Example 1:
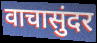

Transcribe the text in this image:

वाचासुंदर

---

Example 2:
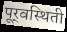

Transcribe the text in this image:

पूर्वस्थिती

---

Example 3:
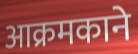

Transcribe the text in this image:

आक्रमकाने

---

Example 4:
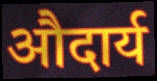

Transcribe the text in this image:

औदार्य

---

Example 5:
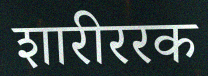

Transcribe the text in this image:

शारीररक